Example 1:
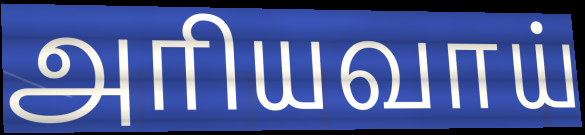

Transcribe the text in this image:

அரியவாய்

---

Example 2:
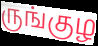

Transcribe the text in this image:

ருங்குழ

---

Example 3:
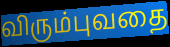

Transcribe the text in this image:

விரும்புவதை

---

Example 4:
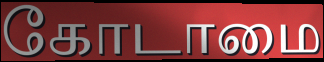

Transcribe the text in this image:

கோடாமை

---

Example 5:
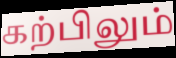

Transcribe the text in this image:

கற்பிலும்